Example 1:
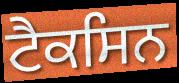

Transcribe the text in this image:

ਟੈਕਸਿਨ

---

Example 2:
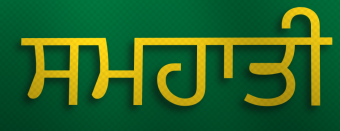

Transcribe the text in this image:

ਸਮਹਾਤੀ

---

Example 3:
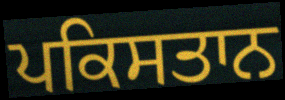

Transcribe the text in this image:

ਪਕਿਸਤਾਨ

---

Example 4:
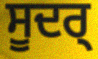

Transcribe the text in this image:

ਸੂਦਰ੍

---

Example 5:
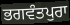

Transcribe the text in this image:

ਭਗਵੰਤਪੁਰਾ